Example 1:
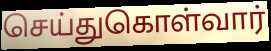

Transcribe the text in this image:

செய்துகொள்வார்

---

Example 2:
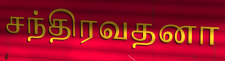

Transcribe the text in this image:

சந்திரவதனா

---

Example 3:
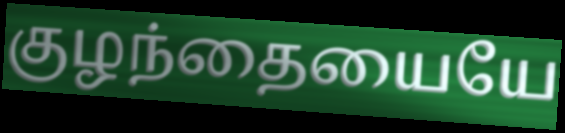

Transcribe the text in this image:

குழந்தையையே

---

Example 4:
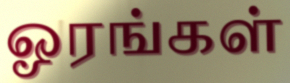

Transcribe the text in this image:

ஓரங்கள்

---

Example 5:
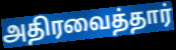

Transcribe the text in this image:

அதிரவைத்தார்